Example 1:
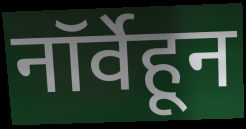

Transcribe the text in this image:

नॉर्वेहून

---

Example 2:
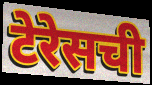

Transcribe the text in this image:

टेरेसची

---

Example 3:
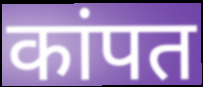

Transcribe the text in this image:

कांपत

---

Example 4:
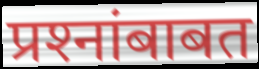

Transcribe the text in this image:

प्रश्‍नांबाबत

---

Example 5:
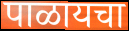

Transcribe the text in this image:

पाळायचा